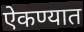
ऐकण्यात